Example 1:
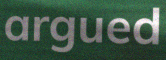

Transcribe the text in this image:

argued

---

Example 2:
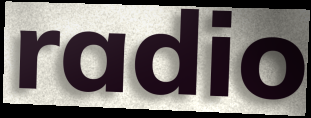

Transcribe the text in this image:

radio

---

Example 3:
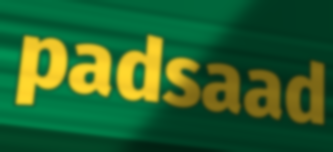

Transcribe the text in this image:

padsaad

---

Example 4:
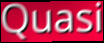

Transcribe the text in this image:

Quasi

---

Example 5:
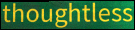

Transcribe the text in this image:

thoughtless